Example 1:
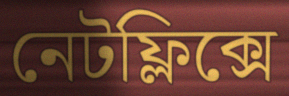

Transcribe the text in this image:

নেটফ্লিক্সে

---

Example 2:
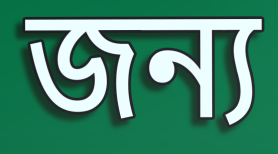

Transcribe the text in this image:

জন্য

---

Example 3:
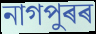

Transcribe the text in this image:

নাগপুৰৰ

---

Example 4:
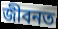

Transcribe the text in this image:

জীবনত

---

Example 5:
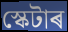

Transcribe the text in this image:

স্কেটাৰ